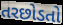
તરછોડતો